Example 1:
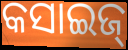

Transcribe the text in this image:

କସାଇଜ୍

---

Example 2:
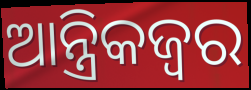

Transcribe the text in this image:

ଆନ୍ତ୍ରିକଜ୍ଵର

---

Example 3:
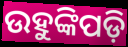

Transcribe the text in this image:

ଉହୁଙ୍କିପଡ଼ି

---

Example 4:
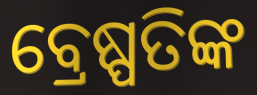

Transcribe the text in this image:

ବ୍ରେଷ୍ପତିଙ୍କ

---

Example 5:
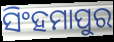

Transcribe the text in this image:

ସିଂହମାପୁର